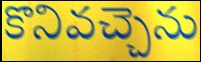
కొనివచ్చెను